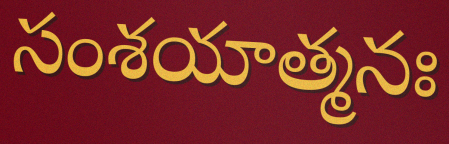
సంశయాత్మనః